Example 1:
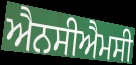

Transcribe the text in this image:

ਐਨਸੀਐਮਸੀ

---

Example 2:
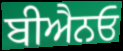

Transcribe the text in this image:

ਬੀਐਨਓ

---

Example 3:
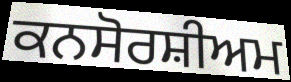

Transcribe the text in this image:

ਕਨਸੋਰਸ਼ੀਅਮ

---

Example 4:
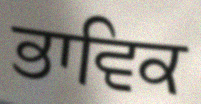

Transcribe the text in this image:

ਭਾਵਿਕ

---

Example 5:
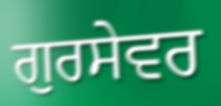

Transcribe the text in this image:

ਗੁਰਸੇਵਰ